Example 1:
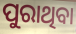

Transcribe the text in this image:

ପୁରାଥିବା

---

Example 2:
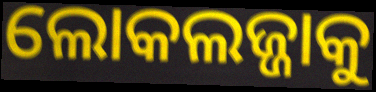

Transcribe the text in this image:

ଲୋକଲଜ୍ଜାକୁ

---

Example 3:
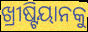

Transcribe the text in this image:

ଖ୍ରୀଷ୍ଟିୟାନକୁ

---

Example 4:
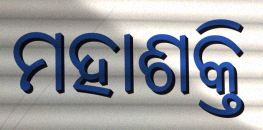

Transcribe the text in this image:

ମହାଶକ୍ତି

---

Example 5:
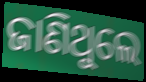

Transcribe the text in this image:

ଜାଣିଥୁଲେ